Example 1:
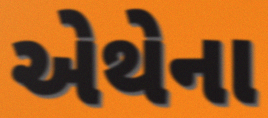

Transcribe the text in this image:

એથેના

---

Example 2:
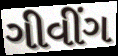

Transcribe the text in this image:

ગીવીંગ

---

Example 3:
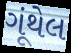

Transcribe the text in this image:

ગૂંથેલ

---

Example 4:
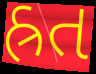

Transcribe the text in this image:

હ્રત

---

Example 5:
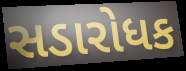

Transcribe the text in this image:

સડારોધક